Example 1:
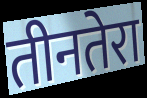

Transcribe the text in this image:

तीनतेरा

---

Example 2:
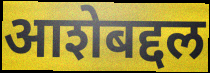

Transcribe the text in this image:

आशेबद्दल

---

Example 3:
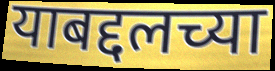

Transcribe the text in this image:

याबद्दलच्या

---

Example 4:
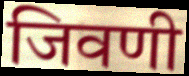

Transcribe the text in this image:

जिवणी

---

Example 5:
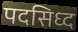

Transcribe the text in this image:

पदसिध्द